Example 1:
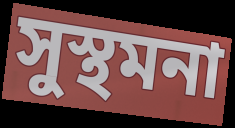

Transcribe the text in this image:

সুস্থমনা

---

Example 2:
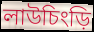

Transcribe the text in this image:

লাউচিংড়ি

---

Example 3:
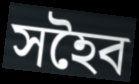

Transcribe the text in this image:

সহৈব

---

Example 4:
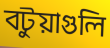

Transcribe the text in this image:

বটুয়াগুলি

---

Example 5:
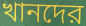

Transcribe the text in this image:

খানদের